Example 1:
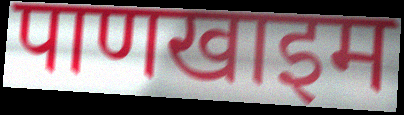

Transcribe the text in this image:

पाणखाइम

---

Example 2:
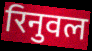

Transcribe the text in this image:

रिनुवल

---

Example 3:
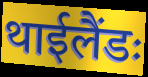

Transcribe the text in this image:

थाईलैंडः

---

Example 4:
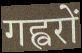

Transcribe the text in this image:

गह्वरों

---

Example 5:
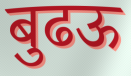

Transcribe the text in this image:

बुढऊ